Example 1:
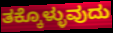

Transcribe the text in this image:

ತಕ್ಕೊಳ್ಳುವುದು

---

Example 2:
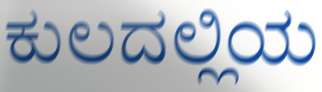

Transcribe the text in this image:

ಕುಲದಲ್ಲಿಯ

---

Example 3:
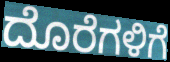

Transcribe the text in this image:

ದೊರೆಗಳಿಗೆ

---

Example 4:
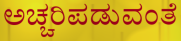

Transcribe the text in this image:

ಅಚ್ಚರಿಪಡುವಂತೆ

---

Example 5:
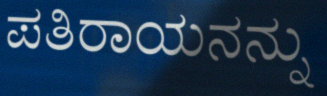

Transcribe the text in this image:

ಪತಿರಾಯನನ್ನು